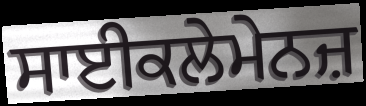
ਸਾਈਕਲੇਮੇਨਜ਼